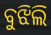
ବୁଝିଲି